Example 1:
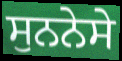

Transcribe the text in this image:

ਸੁਨਨੇਸੇ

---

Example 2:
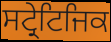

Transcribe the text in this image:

ਸਟ੍ਰੇਟਿਜਿਕ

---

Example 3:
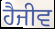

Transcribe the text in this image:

ਹੈਜੀਵ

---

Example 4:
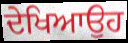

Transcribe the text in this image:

ਦੇਖਿਆਉਹ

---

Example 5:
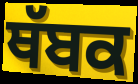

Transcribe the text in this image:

ਥੱਬਕ